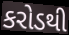
કરોડથી